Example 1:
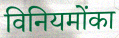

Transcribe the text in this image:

विनियमोंका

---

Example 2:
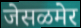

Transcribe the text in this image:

जेसळमेर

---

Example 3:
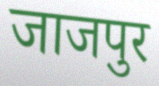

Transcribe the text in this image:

जाजपुर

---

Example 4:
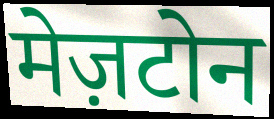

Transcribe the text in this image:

मेज़टोन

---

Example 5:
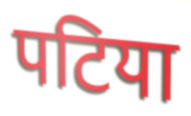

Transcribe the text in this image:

पटिया